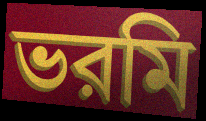
ভরমি